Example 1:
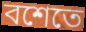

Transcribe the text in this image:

বশেতে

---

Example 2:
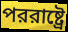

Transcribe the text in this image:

পররাষ্ট্রে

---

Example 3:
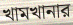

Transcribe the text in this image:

খামখানার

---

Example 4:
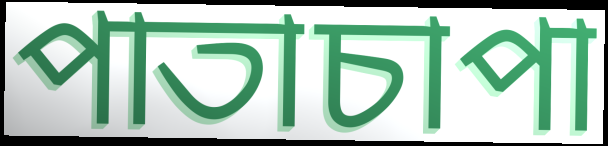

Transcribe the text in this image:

পাতাচাপা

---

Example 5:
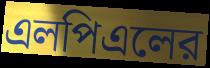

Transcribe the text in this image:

এলপিএলের